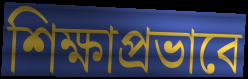
শিক্ষাপ্রভাবে